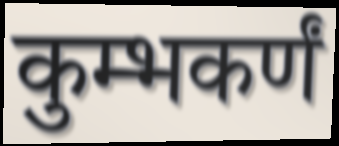
कुम्भकर्णं